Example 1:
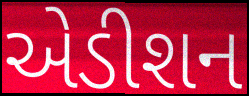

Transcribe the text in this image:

એડીશન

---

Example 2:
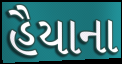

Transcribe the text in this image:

હૈયાના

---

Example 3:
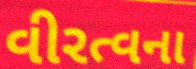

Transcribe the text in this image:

વીરત્વના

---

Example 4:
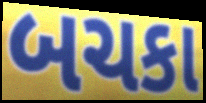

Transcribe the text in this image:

બચકા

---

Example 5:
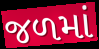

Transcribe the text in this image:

જળમાં